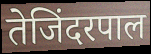
तेजिंदरपाल